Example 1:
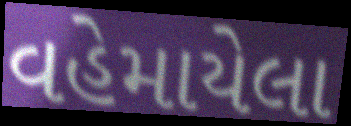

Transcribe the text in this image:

વહેમાયેલા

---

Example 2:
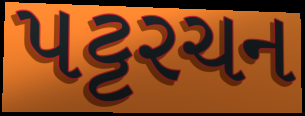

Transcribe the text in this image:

પટ્ટરચન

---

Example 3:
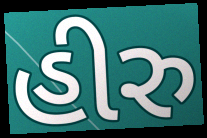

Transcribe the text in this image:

હીરુ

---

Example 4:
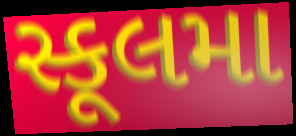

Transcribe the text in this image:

સ્કૂલમા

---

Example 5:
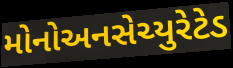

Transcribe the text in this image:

મોનોઅનસેચ્યુરેટેડ